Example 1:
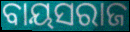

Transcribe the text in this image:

ବାୟସରାଜ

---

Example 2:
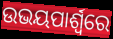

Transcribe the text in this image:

ଉଭୟପାର୍ଶ୍ବରେ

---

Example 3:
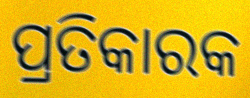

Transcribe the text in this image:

ପ୍ରତିକାରକ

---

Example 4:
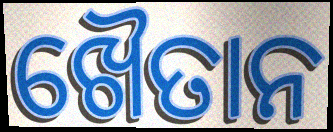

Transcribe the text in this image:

ଖୈତାନ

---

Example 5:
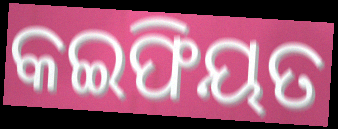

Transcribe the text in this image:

କଇଫିୟତ